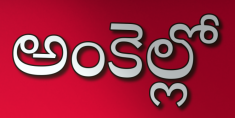
అంకెల్లో